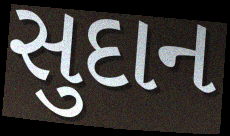
સુદાન